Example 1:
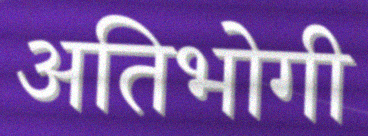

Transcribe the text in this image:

अतिभोगी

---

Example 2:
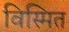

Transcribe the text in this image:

विस्मित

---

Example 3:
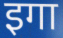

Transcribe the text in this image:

इगा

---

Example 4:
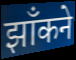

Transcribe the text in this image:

झाँकने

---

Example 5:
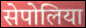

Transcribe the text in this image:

सेपोलिया